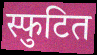
स्फुटित